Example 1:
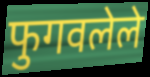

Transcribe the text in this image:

फुगवलेले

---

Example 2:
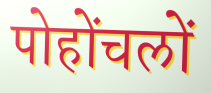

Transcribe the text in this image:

पोहोंचलों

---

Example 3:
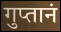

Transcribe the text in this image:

गुप्तानं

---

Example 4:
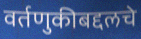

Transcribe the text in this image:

वर्तणुकीबद्दलचे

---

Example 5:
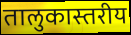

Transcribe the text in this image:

तालुकास्तरीय